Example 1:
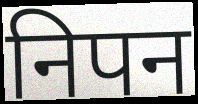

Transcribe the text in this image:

निपन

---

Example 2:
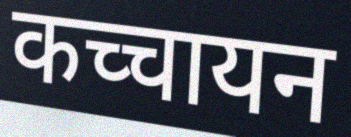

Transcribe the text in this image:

कच्चायन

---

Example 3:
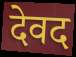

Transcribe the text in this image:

देवद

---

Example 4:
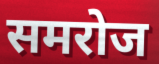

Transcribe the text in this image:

समरोज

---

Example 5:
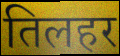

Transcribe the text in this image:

तिलहर